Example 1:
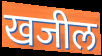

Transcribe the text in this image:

खजील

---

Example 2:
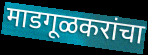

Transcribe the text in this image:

माडगूळकरांचा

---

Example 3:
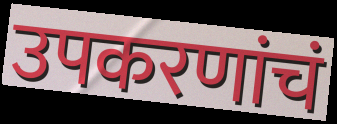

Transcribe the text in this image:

उपकरणांचं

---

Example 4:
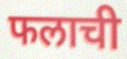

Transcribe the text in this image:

फलाची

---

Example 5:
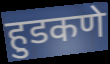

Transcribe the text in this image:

हुडकणे